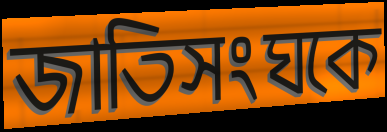
জাতিসংঘকে